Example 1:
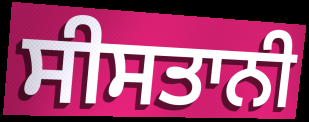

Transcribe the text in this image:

ਸੀਸਤਾਨੀ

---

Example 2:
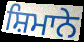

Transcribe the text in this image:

ਸ਼ਿਮਾਨੇ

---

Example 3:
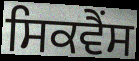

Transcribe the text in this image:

ਸਿਕਵੈਂਸ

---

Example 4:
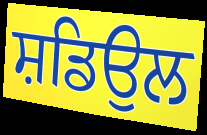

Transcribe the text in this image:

ਸ਼ਡਿਉਲ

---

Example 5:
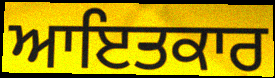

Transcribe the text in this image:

ਆਇਤਕਾਰ